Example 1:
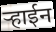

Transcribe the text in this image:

ऱ्हाईन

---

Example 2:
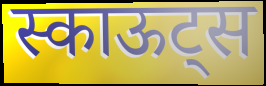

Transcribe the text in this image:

स्काऊट्स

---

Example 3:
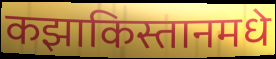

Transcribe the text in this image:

कझाकिस्तानमधे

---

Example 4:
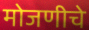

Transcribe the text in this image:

मोजणीचे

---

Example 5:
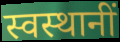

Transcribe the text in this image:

स्वस्थानीं